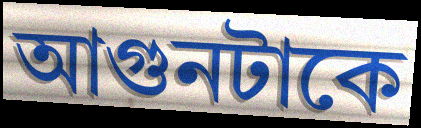
আগুনটাকে